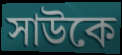
সাউকে